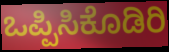
ಒಪ್ಪಿಸಿಕೊಡಿರಿ